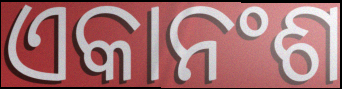
ଏକାନଂଶ